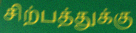
சிற்பத்துக்கு